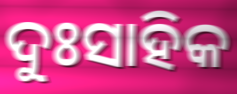
ଦୁଃସାହିକ